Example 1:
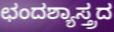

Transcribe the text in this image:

ಛಂದಶ್ಯಾಸ್ತ್ರದ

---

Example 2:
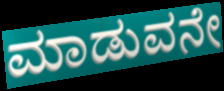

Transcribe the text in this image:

ಮಾಡುವನೇ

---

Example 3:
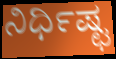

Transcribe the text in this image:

ನಿರ್ಧಿಷ್ಟ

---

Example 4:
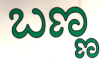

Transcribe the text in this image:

ಬಣ್ಣ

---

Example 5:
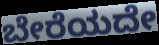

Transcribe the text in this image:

ಬೇರೆಯದೇ